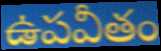
ఉపవీతం